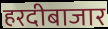
हरदीबाजार